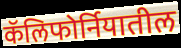
कॅलिफोर्नियातील